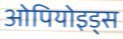
ओपियोइड्स